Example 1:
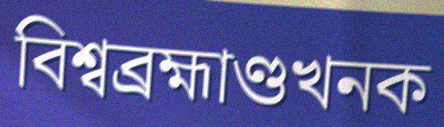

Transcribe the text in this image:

বিশ্বব্ৰহ্মাণ্ডখনক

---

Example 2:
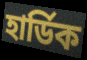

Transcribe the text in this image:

হাৰ্ডিক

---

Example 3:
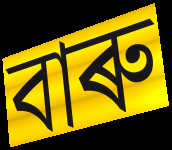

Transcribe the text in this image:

বাৰু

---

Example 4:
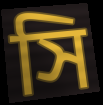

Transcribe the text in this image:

সি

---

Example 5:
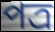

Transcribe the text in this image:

পত্ৰ